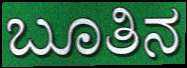
ಬೂತಿನ